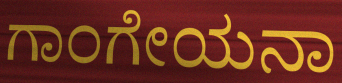
ಗಾಂಗೇಯನಾ